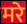
मरे